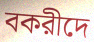
বকরীদে